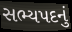
સભ્યપદનું